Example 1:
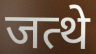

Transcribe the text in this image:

जत्थे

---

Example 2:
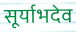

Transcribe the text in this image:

सूर्याभदेव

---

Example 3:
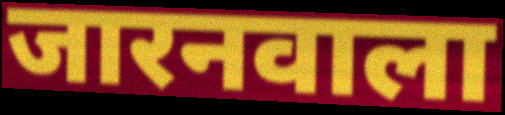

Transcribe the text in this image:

जारनवाला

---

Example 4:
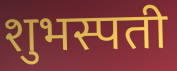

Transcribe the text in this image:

शुभस्पती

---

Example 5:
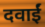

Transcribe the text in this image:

दवाईं